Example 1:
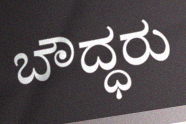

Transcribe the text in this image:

ಬೌದ್ಧರು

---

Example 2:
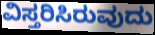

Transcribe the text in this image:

ವಿಸ್ತರಿಸಿರುವುದು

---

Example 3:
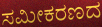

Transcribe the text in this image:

ಸಮೀಕರಣದ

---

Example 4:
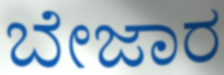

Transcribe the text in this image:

ಬೇಜಾರ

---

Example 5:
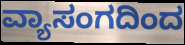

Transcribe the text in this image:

ವ್ಯಾಸಂಗದಿಂದ